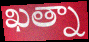
ఖత్నా